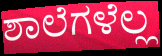
ಶಾಲೆಗಳೆಲ್ಲ